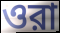
ওরা